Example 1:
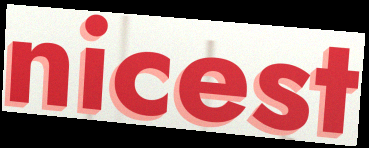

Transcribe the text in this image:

nicest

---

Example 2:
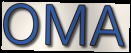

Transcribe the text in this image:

OMA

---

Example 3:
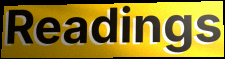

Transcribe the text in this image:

Readings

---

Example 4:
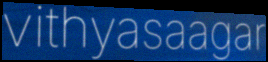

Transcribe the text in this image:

vithyasaagar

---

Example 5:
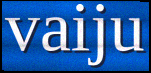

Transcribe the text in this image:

vaiju